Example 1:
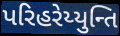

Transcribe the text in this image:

પરિહરેય્યુન્તિ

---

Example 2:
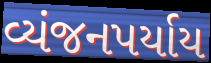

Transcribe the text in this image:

વ્યંજનપર્યાય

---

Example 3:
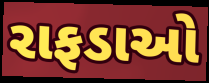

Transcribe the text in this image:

રાફડાઓ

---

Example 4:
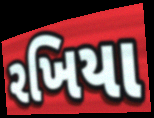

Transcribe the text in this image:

રખિયા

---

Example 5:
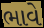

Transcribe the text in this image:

ભાવે